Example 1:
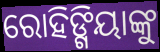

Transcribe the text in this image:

ରୋହିଙ୍ଗିୟାଙ୍କୁ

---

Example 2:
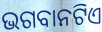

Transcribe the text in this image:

ଭଗବାନଟିଏ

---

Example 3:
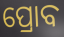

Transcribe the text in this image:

ପ୍ରୋବ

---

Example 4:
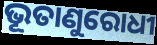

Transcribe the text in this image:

ଭୂତାଣୁରୋଧୀ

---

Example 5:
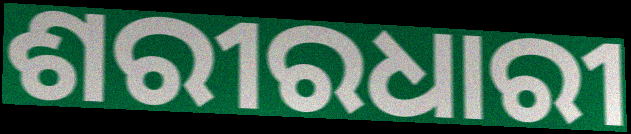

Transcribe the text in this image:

ଶରୀରଧାରୀ